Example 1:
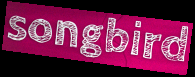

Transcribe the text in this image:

songbird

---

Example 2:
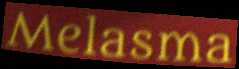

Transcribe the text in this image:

Melasma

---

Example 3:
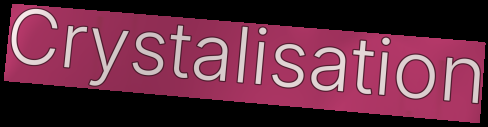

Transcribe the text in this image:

Crystalisation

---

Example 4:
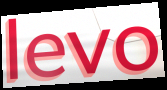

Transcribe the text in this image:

levo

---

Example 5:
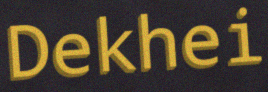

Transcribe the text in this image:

Dekhei